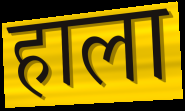
हाला